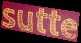
sutte